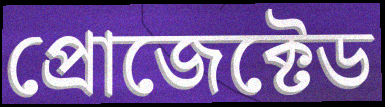
প্রোজেক্টেড